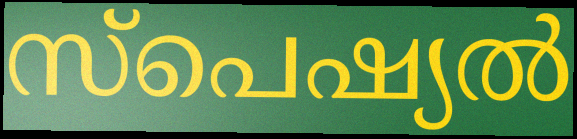
സ്പെഷ്യൽ